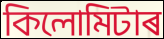
কিলোমিটাৰ